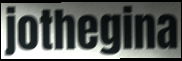
jothegina